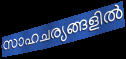
സാഹചര്യങ്ങളിൽ